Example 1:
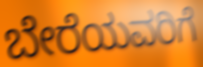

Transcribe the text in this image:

ಬೇರೆಯವರಿಗೆ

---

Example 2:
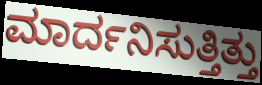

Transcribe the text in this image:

ಮಾರ್ದನಿಸುತ್ತಿತ್ತು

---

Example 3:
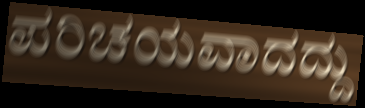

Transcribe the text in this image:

ಪರಿಚಯವಾದದ್ದು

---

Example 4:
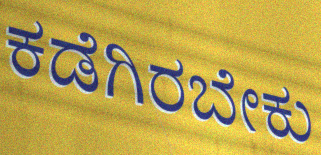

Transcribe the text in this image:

ಕಡೆಗಿರಬೇಕು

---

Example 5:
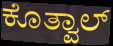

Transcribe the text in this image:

ಕೊತ್ವಾಲ್